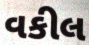
વકીલ